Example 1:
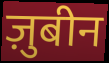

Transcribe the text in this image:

ज़ुबीन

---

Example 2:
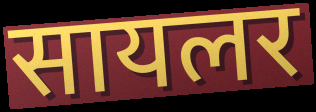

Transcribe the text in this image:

सायलर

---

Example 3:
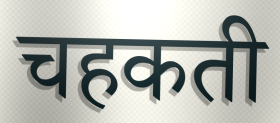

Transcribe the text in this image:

चहकती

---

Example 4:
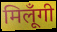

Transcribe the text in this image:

मिलूँगी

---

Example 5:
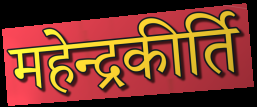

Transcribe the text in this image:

महेन्द्रकीर्ति